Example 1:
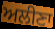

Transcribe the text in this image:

ਅਲੀਣਾ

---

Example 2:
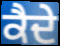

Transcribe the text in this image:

ਕੈਦੇ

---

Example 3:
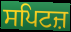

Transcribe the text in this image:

ਸਪਿਟਜ਼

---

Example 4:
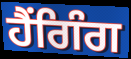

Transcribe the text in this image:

ਹੈਂਗਿੰਗ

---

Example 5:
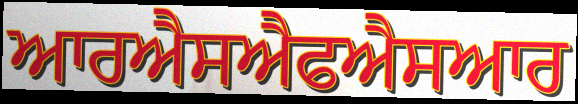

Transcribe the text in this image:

ਆਰਐਸਐਫਐਸਆਰ